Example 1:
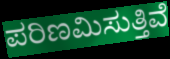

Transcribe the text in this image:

ಪರಿಣಮಿಸುತ್ತಿವೆ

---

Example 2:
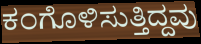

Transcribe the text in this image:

ಕಂಗೊಳಿಸುತ್ತಿದ್ದವು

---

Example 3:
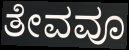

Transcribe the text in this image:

ತೇವವೂ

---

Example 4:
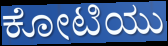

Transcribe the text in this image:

ಕೋಟಿಯು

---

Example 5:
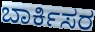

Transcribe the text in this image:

ಬಾರ್ಕಿಸರ